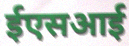
ईएसआई